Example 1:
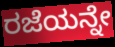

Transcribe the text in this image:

ರಜೆಯನ್ನೇ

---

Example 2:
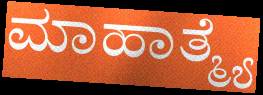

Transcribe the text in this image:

ಮಾಹಾತ್ಮ್ಯೆ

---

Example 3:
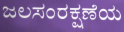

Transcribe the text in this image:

ಜಲಸಂರಕ್ಷಣೆಯ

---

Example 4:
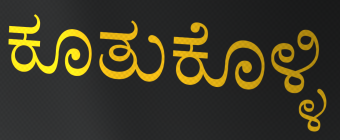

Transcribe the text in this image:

ಕೂತುಕೊಳ್ಳಿ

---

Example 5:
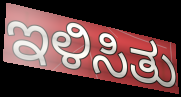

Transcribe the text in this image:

ಇಳಿಸಿತು